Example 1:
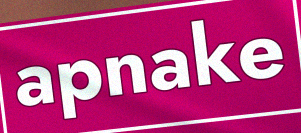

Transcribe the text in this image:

apnake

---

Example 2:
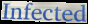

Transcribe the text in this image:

Infected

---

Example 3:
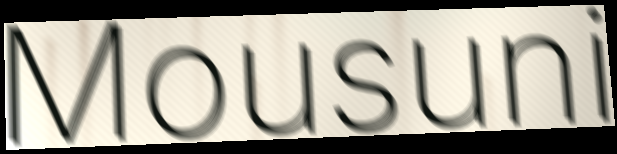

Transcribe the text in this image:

Mousuni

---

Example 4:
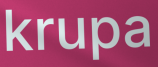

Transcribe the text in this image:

krupa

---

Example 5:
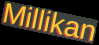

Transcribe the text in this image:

Millikan